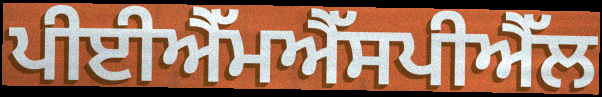
ਪੀਈਐੱਮਐੱਸਪੀਐੱਲ